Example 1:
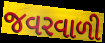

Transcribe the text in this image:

જવરવાળી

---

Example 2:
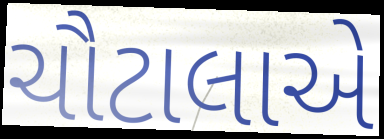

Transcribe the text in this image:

ચૌટાલાએ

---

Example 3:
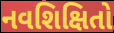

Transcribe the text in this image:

નવશિક્ષિતો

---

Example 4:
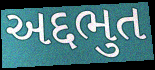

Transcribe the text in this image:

અદ્દભુત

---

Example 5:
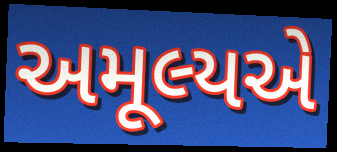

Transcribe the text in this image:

અમૂલ્યએ